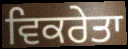
ਵਿਕਰੇਤਾ